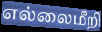
எல்லைமீறி